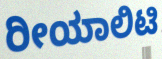
ರೀಯಾಲಿಟಿ